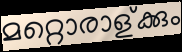
മറ്റൊരാള്ക്കും